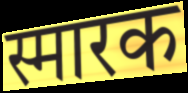
स्मारक